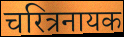
चरित्रनायक